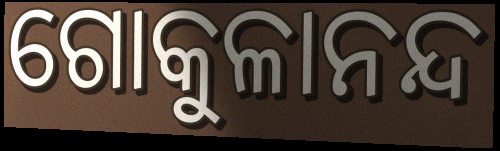
ଗୋକୁଳାନନ୍ଦ